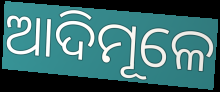
ଆଦିମୂଳେ